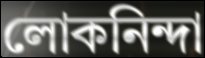
লোকনিন্দা